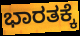
ಭಾರತಕ್ಕೆ